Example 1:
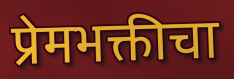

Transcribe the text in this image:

प्रेमभक्तीचा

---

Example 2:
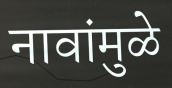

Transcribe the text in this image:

नावांमुळे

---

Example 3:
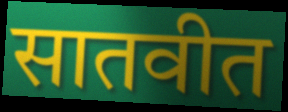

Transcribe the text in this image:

सातवीत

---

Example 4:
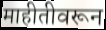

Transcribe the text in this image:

माहीतीवरून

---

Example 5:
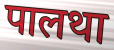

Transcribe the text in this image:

पालथा